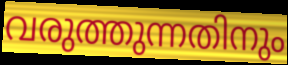
വരുത്തുന്നതിനും